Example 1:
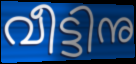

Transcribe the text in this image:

വീട്ടിനു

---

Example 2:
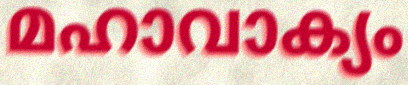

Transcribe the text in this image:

മഹാവാക്യം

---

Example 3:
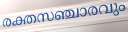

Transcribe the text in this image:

രക്തസഞ്ചാരവും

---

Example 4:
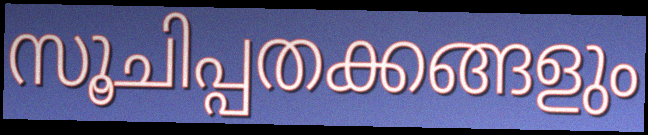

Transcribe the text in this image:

സൂചിപ്പതക്കങ്ങളും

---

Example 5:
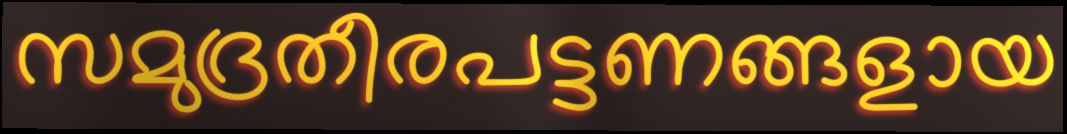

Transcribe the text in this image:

സമുദ്രതീരപട്ടണങ്ങളായ